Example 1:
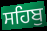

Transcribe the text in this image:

ਸਹਿਬੁ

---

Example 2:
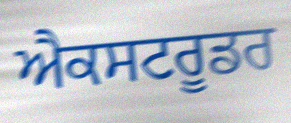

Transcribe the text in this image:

ਐਕਸਟਰੂਡਰ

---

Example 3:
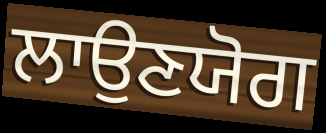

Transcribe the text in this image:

ਲਾਉਣਯੋਗ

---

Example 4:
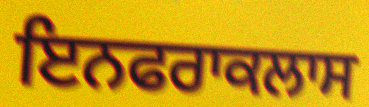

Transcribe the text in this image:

ਇਨਫਰਾਕਲਾਸ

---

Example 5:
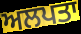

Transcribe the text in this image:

ਅਲਪਤਾ